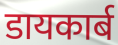
डायकार्ब